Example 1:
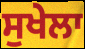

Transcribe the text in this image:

ਸੁਖੇਲਾ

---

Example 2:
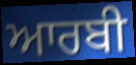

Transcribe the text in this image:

ਆਰਬੀ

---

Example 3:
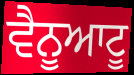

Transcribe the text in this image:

ਵੈਨੂਆਟੂ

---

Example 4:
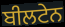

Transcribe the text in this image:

ਬੀਲਟੇਨ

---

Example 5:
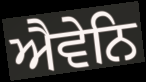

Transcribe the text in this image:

ਐਵੇਨਿ